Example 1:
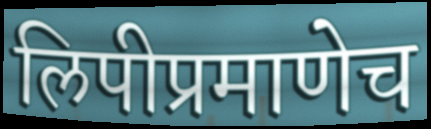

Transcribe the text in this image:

लिपीप्रमाणेच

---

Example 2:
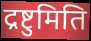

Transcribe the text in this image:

द्रष्टुमिति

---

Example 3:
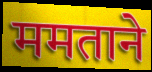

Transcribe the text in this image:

ममताने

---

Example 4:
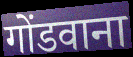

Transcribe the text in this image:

गोंडवाना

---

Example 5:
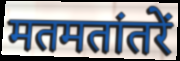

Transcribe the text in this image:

मतमतांतरें